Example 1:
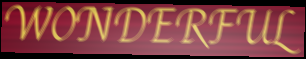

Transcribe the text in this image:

WONDERFUL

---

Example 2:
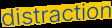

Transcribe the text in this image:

distraction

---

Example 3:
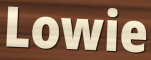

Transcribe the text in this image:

Lowie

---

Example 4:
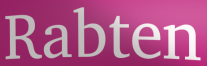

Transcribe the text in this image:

Rabten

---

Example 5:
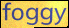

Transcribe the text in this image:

foggy